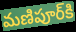
మణిపూర్‌కి